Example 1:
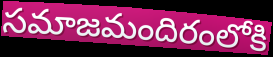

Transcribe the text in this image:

సమాజమందిరంలోకి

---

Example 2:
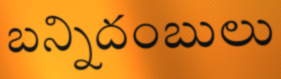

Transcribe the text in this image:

బన్నిదంబులు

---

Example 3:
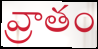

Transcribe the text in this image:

వ్రాతం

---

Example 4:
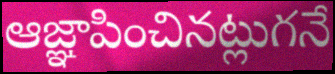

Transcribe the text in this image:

ఆజ్ఞాపించినట్లుగనే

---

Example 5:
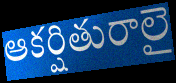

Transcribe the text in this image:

ఆకర్షితురాలై